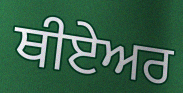
ਥੀਏਅਰ